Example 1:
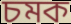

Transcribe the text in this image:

চমক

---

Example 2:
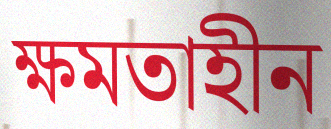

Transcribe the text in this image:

ক্ষমতাহীন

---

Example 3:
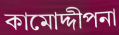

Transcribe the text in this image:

কামোদ্দীপনা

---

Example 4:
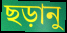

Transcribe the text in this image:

ছড়ানু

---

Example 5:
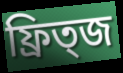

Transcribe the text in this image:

ফ্রিত্জ